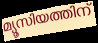
മ്യൂസിയത്തിന്